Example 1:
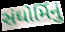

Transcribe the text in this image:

સંઘોર્મિનું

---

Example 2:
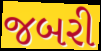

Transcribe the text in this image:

જબરી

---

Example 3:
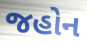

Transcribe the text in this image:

જહોન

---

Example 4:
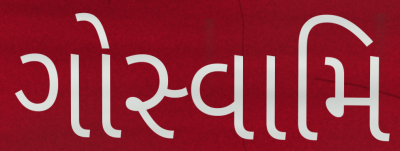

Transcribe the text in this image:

ગોસ્વામિ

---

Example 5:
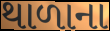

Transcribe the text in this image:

થાળાના